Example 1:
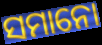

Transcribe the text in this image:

ସମାନୋ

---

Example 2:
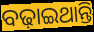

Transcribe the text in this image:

ବଢ଼ାଇଥାନ୍ତି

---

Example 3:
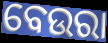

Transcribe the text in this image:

ବେଉରା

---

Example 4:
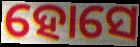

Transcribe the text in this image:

ହୋସେ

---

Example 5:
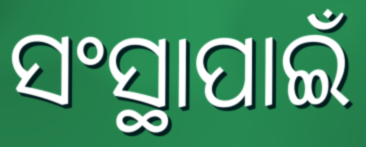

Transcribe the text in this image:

ସଂସ୍ଥାପାଇଁ